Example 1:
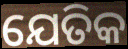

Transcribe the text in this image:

ଯେତିକ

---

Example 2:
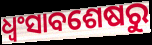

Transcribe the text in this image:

ଧ୍ୱଂସାବଶେଷରୁ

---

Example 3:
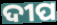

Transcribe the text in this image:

ଦୀପ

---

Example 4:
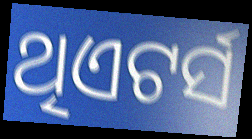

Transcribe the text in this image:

ଥିଏଟର୍ସ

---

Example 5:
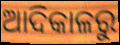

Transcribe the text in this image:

ଆଦିକାଳରୁ